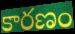
కారణం